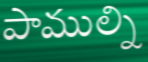
పాముల్ని